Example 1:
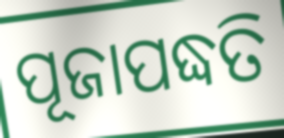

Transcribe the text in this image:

ପୂଜାପଦ୍ଧତି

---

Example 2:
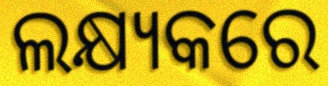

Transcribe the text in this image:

ଲକ୍ଷ୍ୟକରେ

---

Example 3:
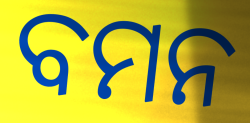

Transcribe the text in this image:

ବମନ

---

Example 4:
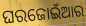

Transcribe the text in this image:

ଘରଜୋଇଁଆର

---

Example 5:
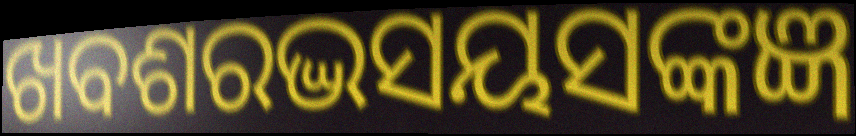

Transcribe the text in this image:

ଖବଶରଦ୍ଭସୟସଙ୍କଜ୍ଞ